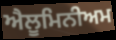
ਐਲੂਮਿਨੀਅਮ